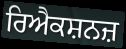
ਰਿਐਕਸ਼ਨਜ਼